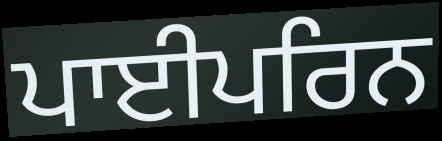
ਪਾਈਪਰਿਨ